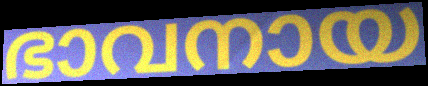
ഭാവനായ